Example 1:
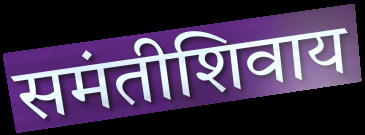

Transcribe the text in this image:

समंतीशिवाय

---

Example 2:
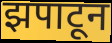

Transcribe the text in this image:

झपाटून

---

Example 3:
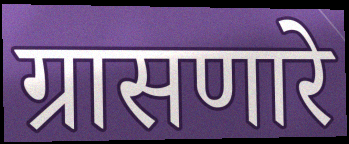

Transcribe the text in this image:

ग्रासणारे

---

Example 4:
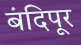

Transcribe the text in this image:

बंदिपूर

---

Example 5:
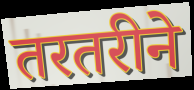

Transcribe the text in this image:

तरतरीने